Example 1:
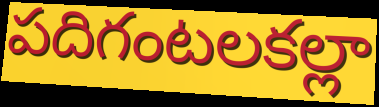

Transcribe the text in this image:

పదిగంటలకల్లా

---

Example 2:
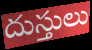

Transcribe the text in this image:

దుస్తులు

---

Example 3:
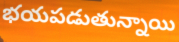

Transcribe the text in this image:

భయపడుతున్నాయి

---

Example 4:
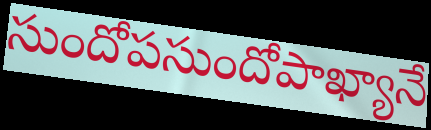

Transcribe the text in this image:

సుందోపసుందోపాఖ్యానే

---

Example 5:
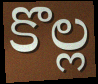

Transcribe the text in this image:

కొల్ల